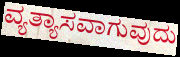
ವ್ಯತ್ಯಾಸವಾಗುವುದು